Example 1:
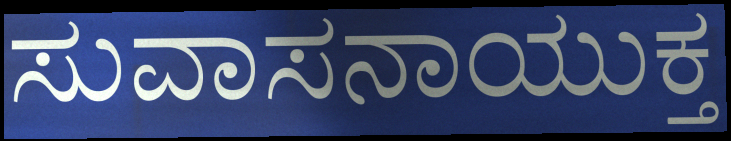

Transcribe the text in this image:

ಸುವಾಸನಾಯುಕ್ತ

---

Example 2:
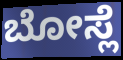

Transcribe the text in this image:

ಬೋಸ್ಲೆ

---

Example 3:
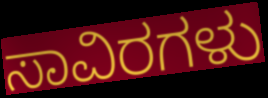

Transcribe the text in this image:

ಸಾವಿರಗಳು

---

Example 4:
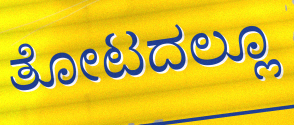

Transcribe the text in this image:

ತೋಟದಲ್ಲೂ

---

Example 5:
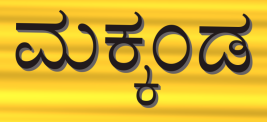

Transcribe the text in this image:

ಮಕ್ಕಂಡ